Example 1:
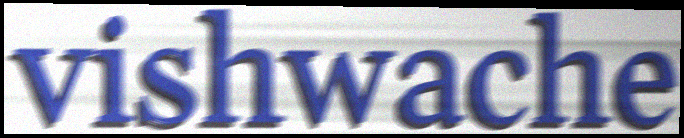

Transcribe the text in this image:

vishwache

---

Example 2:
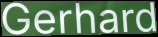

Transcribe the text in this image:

Gerhard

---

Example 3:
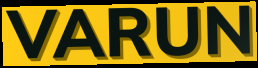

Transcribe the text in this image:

VARUN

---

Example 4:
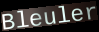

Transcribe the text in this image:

Bleuler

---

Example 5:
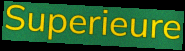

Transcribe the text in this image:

Superieure